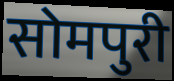
सोमपुरी